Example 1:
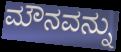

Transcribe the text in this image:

ಮೌನವನ್ನು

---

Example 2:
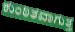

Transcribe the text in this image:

ಕುಂಠಿತವಾಗುತ್ತ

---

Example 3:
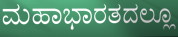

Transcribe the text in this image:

ಮಹಾಭಾರತದಲ್ಲೂ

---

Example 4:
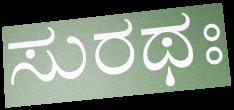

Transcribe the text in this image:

ಸುರಥಃ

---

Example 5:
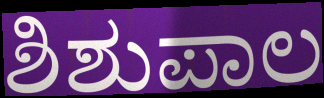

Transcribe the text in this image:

ಶಿಶುಪಾಲ